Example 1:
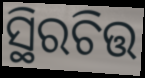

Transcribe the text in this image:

ସ୍ଥିରଚିତ୍ତ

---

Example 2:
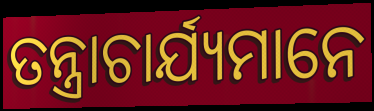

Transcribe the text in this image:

ତନ୍ତ୍ରାଚାର୍ଯ୍ୟମାନେ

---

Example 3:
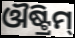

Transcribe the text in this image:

ଔଷ୍ଟ୍ରିମ୍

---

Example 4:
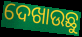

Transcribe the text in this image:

ଦେଖାଉଛୁ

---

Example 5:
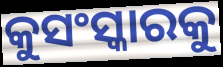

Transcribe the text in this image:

କୁସଂସ୍କାରକୁ